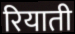
रियाती